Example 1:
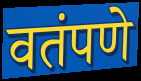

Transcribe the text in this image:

वतंपणे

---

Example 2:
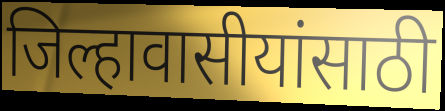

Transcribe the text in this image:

जिल्हावासीयांसाठी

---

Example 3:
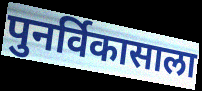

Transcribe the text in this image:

पुनर्विकासाला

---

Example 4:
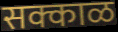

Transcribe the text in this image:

सक्काळ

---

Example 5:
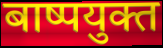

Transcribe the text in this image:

बाष्पयुक्त